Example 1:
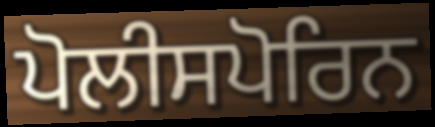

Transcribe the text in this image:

ਪੋਲੀਸਪੋਰਿਨ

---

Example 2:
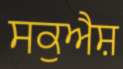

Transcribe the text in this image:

ਸਕੁਐਸ਼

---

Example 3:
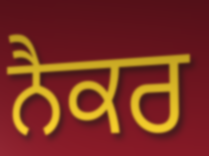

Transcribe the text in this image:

ਨੈਕਰ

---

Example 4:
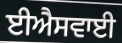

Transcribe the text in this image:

ਈਐਸਵਾਈ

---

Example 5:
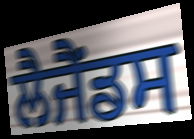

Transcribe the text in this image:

ਲੈਜੈਂਡਸ